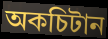
অকচিটান